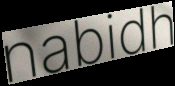
nabidh